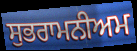
ਸੁਭਰਾਮਨੀਅਮ